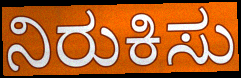
ನಿರುಕಿಸು